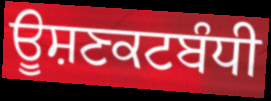
ਊਸ਼ਣਕਟਬੰਧੀ